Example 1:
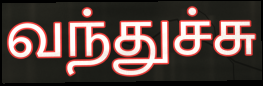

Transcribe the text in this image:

வந்துச்சு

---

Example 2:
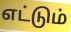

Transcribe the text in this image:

எட்டும்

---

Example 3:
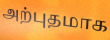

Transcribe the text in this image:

அற்புதமாக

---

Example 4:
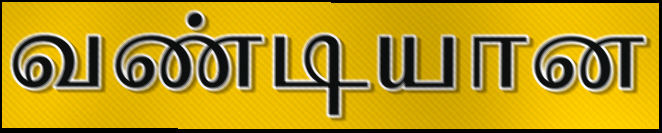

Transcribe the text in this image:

வண்டியான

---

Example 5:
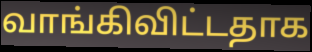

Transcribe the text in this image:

வாங்கிவிட்டதாக